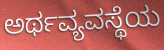
ಅರ್ಥವ್ಯವಸ್ಥೆಯ